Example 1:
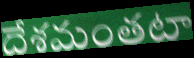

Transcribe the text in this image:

దేశమంతటా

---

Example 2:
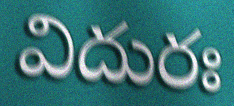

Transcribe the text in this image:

విదురః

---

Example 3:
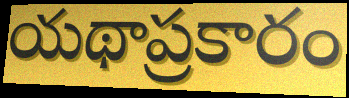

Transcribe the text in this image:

యథాప్రకారం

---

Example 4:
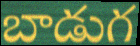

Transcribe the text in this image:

బాడుగ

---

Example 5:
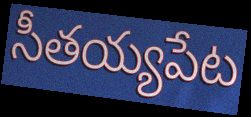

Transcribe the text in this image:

సీతయ్యపేట